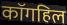
कॉगहिल